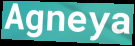
Agneya